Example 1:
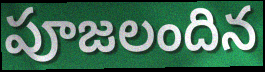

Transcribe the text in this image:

పూజలందిన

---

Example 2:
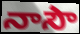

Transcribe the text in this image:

నాసౌ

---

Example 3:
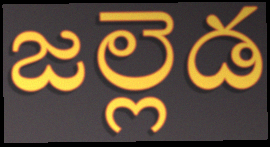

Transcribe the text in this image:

జల్లెడ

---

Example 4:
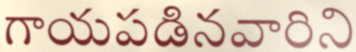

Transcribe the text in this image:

గాయపడినవారిని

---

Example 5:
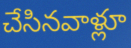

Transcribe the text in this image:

చేసినవాళ్లూ